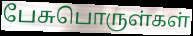
பேசுபொருள்கள்